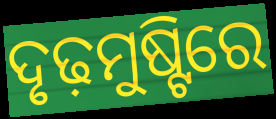
ଦୃଢ଼ମୁଷ୍ଟିରେ